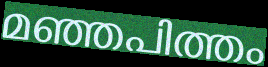
മഞ്ഞപിത്തം